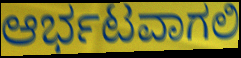
ಆರ್ಭಟವಾಗಲಿ